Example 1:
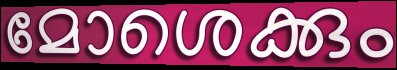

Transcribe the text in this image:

മോശെക്കും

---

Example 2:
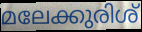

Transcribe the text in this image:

മലേക്കുരിശ്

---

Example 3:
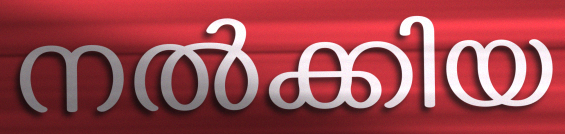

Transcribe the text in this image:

നൽക്കിയ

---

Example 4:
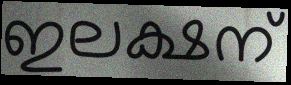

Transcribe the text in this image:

ഇലക്ഷന്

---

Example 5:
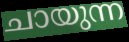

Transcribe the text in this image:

ചായുന്ന